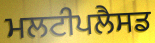
ਮਲਟੀਪਲੈਸਡ